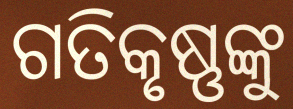
ଗତିକୃଷ୍ଣଙ୍କୁ